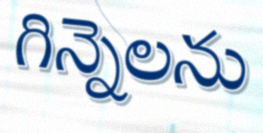
గిన్నెలను